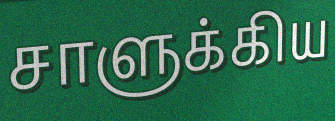
சாளுக்கிய